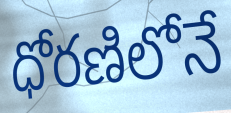
ధోరణిలోనే